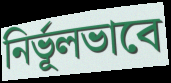
নির্ভূলভাবে